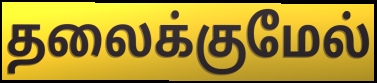
தலைக்குமேல்